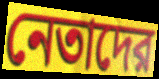
নেতাদের